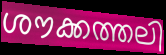
ശൗക്കത്തലി